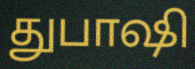
துபாஷி